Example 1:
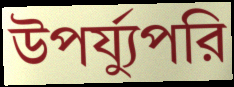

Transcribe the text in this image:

উপর্য্যুপরি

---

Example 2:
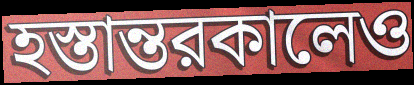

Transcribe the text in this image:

হস্তান্তরকালেও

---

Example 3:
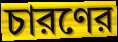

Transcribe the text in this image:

চারণের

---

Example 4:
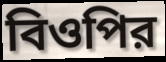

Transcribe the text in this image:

বিওপির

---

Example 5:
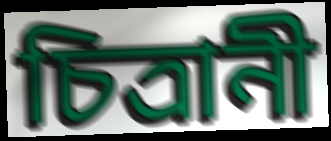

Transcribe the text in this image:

চিত্রানী